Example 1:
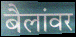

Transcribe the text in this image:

बैलांवर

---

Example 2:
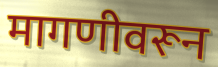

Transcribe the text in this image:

मागणीवरून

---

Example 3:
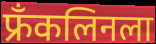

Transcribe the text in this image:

फ्रॅंकलिनला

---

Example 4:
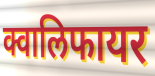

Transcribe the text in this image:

क्वालिफायर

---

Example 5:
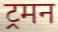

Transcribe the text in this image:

ट्रमन